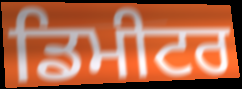
ਡਿਮੀਟਰ